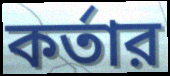
কর্তার